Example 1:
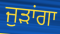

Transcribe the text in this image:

ਜੁੜਾਂਗਾ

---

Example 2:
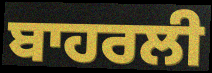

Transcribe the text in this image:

ਬਾਹਰਲੀ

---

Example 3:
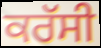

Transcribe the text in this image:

ਕਰੱਸੀ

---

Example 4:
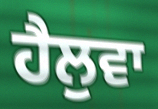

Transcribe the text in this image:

ਹੈਲੁਵਾ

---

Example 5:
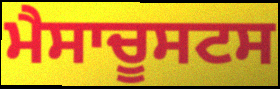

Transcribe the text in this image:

ਮੈਸਾਚੂਸਟਸ